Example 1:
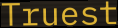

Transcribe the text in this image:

Truest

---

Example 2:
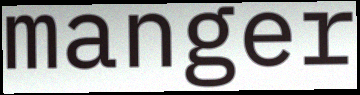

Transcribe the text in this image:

manger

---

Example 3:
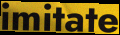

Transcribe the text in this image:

imitate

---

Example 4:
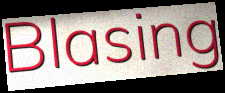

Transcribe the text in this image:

Blasing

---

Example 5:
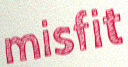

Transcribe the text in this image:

misfit